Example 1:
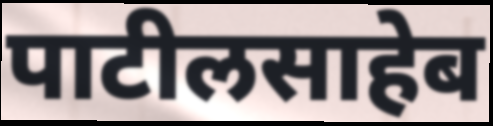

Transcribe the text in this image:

पाटीलसाहेब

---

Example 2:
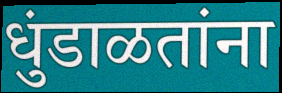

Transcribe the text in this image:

धुंडाळतांना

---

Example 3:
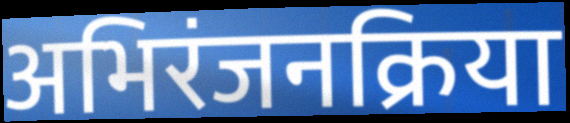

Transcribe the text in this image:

अभिरंजनक्रिया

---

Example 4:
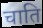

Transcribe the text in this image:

चाति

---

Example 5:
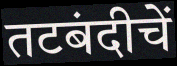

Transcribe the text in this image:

तटबंदीचें